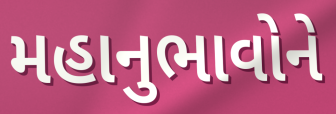
મહાનુભાવોને